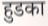
हुडका